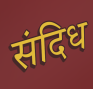
संदिध